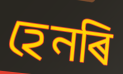
হেনৰি